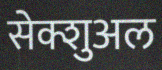
सेक्शुअल